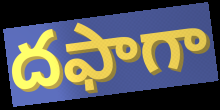
దఫాగా